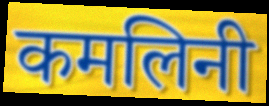
कमलिनी